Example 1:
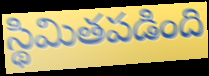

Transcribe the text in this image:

స్థిమితపడింది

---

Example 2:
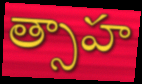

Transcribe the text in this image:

త్సాహ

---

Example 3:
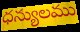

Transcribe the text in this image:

ధన్యులము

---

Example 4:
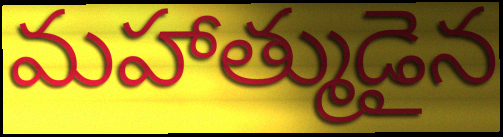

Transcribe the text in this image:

మహాత్ముడైన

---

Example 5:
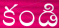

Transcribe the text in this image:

కండి